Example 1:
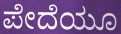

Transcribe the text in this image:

ಪೇದೆಯೂ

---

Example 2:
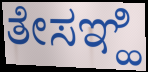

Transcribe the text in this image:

ತೇಸಞ್ಹಿ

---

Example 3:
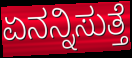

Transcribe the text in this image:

ಏನನ್ನಿಸುತ್ತೆ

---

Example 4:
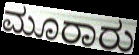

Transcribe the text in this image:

ಮೂರಾರು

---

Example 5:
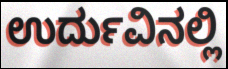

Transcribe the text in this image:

ಉರ್ದುವಿನಲ್ಲಿ